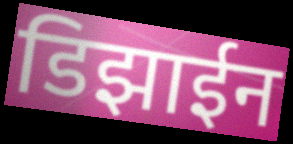
डिझाईन